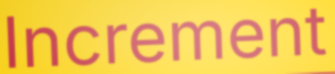
Increment